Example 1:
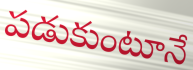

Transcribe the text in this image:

పడుకుంటూనే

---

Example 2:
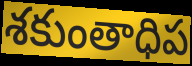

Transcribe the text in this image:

శకుంతాధిప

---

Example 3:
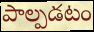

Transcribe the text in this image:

పాల్పడటం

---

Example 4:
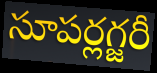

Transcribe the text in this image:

సూపర్లగ్జరీ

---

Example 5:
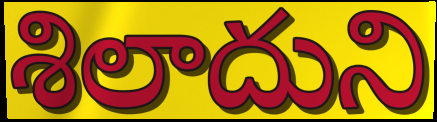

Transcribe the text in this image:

శిలాదుని